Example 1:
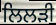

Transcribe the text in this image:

ਲਿਲੜੀ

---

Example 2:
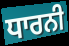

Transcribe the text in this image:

ਧਾਰਨੀ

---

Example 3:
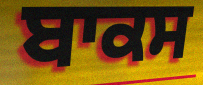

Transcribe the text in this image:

ਬਾਕਸ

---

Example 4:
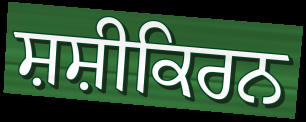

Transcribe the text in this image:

ਸ਼ਸ਼ੀਕਿਰਨ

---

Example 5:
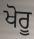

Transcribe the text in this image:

ਖੋਰੂ